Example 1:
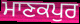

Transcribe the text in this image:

ਮਾਣਕਪੁਰ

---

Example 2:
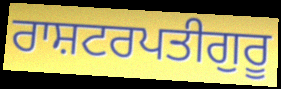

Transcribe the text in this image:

ਰਾਸ਼ਟਰਪਤੀਗੁਰੂ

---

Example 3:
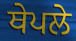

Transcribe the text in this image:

ਥੇਪਲੇ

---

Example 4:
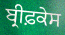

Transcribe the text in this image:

ਬ੍ਰੀਫ਼ਕੇਸ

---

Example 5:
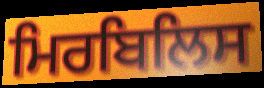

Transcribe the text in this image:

ਮਿਰਬਿਲਿਸ